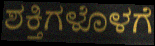
ಶಕ್ತಿಗಳೊಳಗೆ